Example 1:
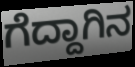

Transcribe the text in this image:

ಗೆದ್ದಾಗಿನ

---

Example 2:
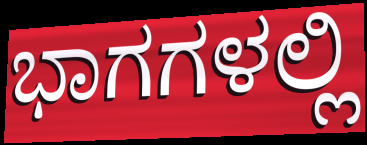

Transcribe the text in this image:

ಭಾಗಗಳಲ್ಲಿ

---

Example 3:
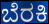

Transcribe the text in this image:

ಬೆರಕಿ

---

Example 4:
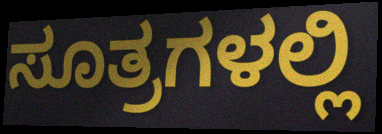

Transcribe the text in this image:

ಸೂತ್ರಗಳಲ್ಲಿ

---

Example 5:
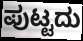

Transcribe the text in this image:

ಪುಟ್ಟದು